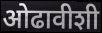
ओढावीशी